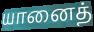
யானைத்